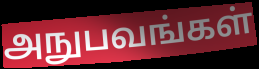
அநுபவங்கள்